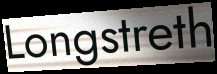
Longstreth